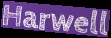
Harwell